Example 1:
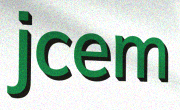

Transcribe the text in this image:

jcem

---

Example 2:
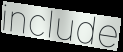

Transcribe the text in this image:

include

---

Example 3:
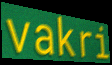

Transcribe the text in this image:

vakri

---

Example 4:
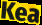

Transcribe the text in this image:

Kea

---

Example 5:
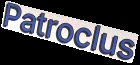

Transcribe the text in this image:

Patroclus